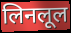
लिनलूल